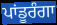
ਪਾਂਡੂਰੰਗਾ